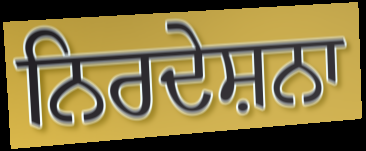
ਨਿਰਦੇਸ਼ਨਾ